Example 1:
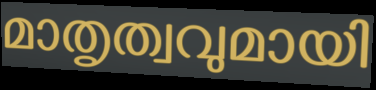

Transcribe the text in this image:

മാതൃത്വവുമായി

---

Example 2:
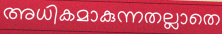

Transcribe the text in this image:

അധികമാകുന്നതല്ലാതെ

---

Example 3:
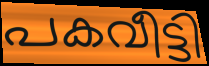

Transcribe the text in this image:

പകവീട്ടി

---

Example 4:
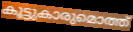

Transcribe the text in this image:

കൂട്ടുകാരുമൊത്ത്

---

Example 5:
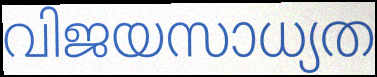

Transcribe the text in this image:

വിജയസാധ്യത